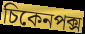
চিকেনপক্স